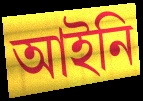
আইনি